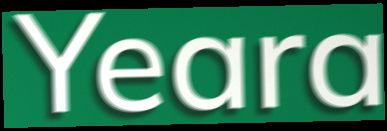
Yeara